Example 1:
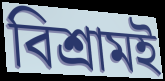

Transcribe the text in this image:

বিশ্রামই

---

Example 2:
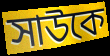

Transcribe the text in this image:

সাউকে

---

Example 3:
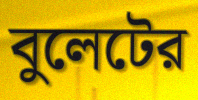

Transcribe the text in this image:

বুলেটের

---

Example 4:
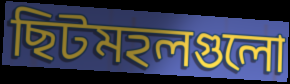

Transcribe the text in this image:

ছিটমহলগুলো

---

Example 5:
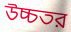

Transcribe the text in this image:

উচ্চতর